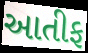
આતીફ